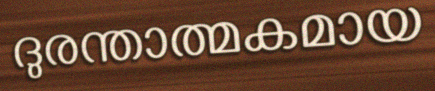
ദുരന്താത്മകമായ